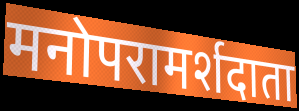
मनोपरामर्शदाता